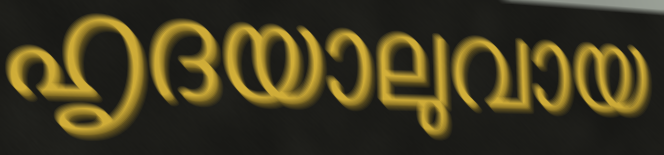
ഹൃദയാലുവായ